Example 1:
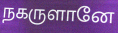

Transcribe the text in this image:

நகருளானே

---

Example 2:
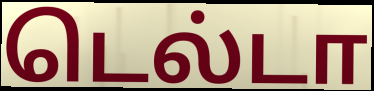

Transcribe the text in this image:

டெல்டா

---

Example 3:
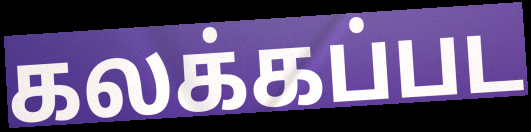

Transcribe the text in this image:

கலக்கப்பட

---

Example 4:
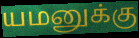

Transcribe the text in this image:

யமனுக்கு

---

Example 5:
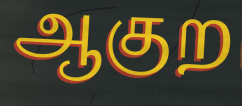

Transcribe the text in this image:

ஆகுற